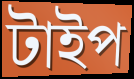
টাইপ